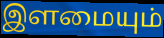
இளமையும்